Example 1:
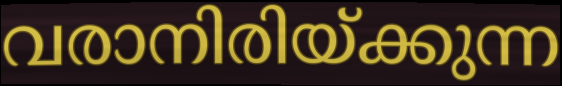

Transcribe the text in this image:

വരാനിരിയ്ക്കുന്ന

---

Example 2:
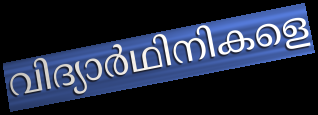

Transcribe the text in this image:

വിദ്യാർഥിനികളെ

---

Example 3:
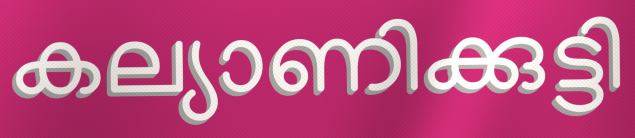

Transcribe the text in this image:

കല്യാണിക്കുട്ടി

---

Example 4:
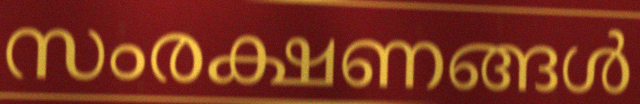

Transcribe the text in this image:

സംരക്ഷണങ്ങൾ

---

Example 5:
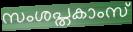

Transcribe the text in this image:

സംശപ്തകാംസ്